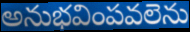
అనుభవింపవలెను